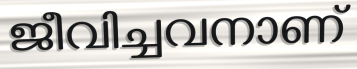
ജീവിച്ചവനാണ്